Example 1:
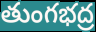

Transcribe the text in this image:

తుంగభద్ర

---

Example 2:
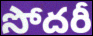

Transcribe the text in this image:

సోదరీ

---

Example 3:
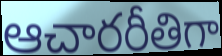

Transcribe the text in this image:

ఆచారరీతిగా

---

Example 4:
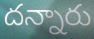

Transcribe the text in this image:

దన్నారు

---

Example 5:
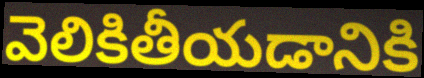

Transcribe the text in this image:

వెలికితీయడానికి